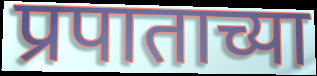
प्रपाताच्या